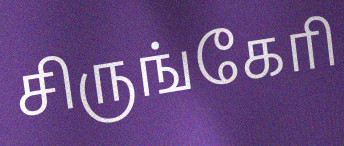
சிருங்கேரி